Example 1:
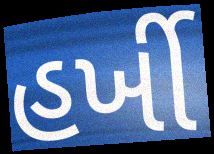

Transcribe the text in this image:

હર્ખી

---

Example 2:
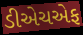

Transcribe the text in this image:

ડીએચએફ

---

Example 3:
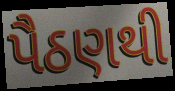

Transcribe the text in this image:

પૈઠણથી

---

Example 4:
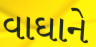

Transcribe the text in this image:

વાઘાને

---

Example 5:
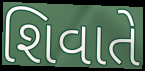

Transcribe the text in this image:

શિવાતે